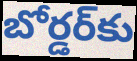
బోర్డర్‌కు